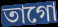
তাগো